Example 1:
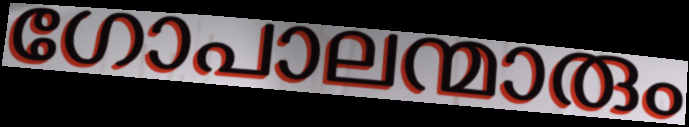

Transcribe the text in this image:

ഗോപാലന്മാരും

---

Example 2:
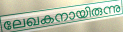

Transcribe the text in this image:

ലേഖകനായിരുന്നു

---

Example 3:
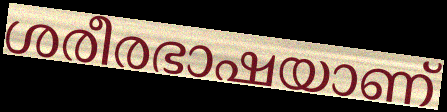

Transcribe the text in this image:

ശരീരഭാഷയാണ്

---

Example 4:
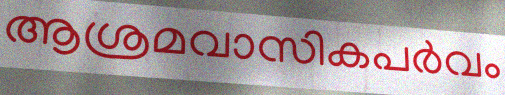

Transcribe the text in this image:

ആശ്രമവാസികപർവം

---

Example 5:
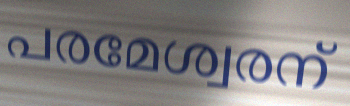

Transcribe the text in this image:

പരമേശ്വരന്